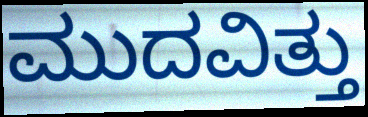
ಮುದವಿತ್ತು